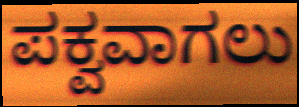
ಪಕ್ವವಾಗಲು